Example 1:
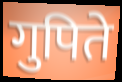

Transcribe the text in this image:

गुपिते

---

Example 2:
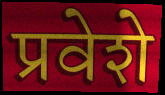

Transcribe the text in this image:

प्रवेशे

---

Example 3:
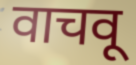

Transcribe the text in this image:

वाचवू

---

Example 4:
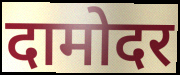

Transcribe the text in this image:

दामोदर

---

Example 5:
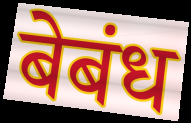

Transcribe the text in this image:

बेबंध